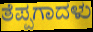
ತೆಪ್ಪಗಾದಳು